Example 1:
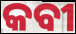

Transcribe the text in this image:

କବୀ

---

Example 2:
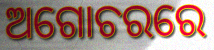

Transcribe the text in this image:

ଅଗୋଚରରେ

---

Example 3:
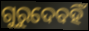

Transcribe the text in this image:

ଗୁରୁଦେବହିଁ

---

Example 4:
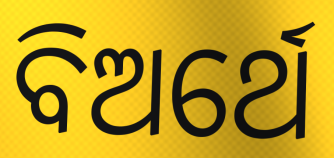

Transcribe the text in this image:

ବିଅର୍ଥେ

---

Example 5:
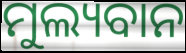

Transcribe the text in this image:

ମୁଲ୍ୟବାନ